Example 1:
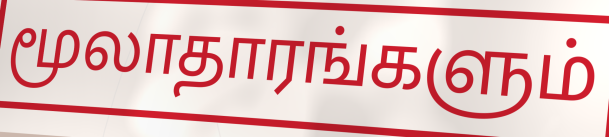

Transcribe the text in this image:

மூலாதாரங்களும்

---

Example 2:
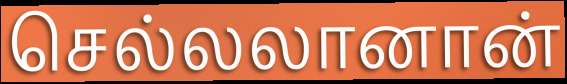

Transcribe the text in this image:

செல்லலானான்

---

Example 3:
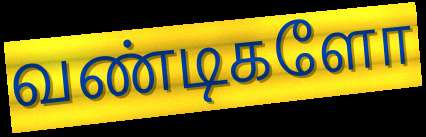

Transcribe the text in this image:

வண்டிகளோ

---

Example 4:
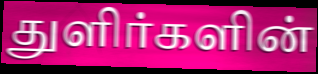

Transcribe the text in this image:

துளிர்களின்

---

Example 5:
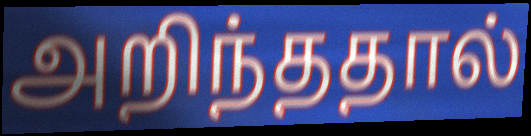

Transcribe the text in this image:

அறிந்ததால்